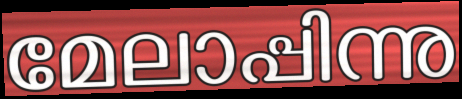
മേലാപ്പിന്നു